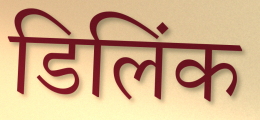
डिलिंक